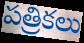
పత్రికలు